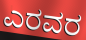
ಎರವರ